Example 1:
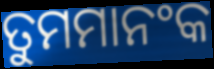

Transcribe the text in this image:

ତୁମମାନଂକ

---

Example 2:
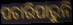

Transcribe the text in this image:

ପଚାରିପାରୁନି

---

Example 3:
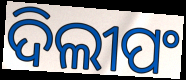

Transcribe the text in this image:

ଦିଲୀପଂ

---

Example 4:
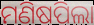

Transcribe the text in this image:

ମଣିଷପିଲା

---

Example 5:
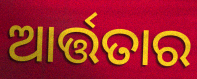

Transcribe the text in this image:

ଆର୍ତ୍ତତାର